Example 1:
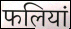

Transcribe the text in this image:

फलियां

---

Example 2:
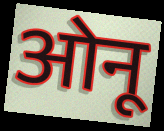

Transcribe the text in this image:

ओनू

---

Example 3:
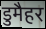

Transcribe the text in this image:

डुमैहर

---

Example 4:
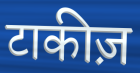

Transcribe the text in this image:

टाकीज़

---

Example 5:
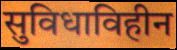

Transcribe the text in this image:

सुविधाविहीन